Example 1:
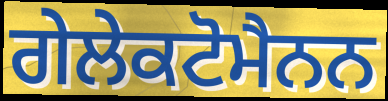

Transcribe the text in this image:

ਗੇਲੇਕਟੋਮੈਨਨ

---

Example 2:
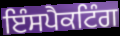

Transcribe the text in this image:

ਇੰਸਪੈਕਟਿੰਗ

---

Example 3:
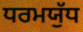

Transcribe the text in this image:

ਧਰਮਯੁੱਧ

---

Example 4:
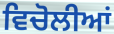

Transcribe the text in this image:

ਵਿਚੋਲੀਆਂ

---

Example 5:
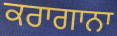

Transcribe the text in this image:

ਕਰਾਗਾਨਾ